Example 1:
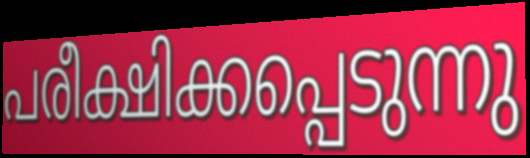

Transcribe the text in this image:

പരീക്ഷിക്കപ്പെടുന്നു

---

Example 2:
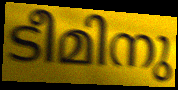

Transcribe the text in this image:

ടീമിനു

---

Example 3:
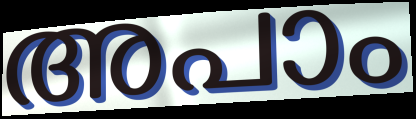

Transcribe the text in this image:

അപാം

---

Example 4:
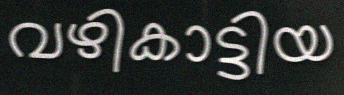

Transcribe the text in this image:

വഴികാട്ടിയ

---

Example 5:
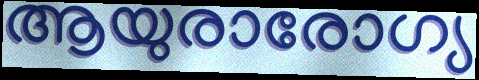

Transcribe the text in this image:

ആയുരാരോഗ്യ